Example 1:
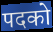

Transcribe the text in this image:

पदको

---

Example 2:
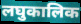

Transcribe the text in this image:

लघुकालिक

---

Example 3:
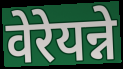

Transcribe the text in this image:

वेरेयन्ने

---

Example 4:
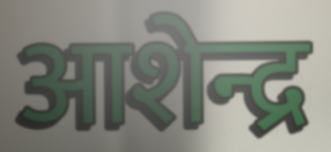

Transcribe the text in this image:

आशेन्द्र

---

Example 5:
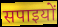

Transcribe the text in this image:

सपाइयों